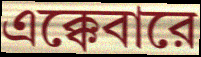
এক্কেবারে